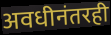
अवधीनंतरही